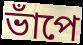
ভাঁপে